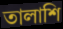
তালাশি